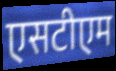
एसटीएम